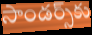
సాండర్స్‌కు